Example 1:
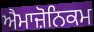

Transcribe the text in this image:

ਐਮਾਜ਼ੋਨਿਕਮ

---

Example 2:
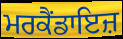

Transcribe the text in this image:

ਮਰਕੈਂਡਾਇਜ਼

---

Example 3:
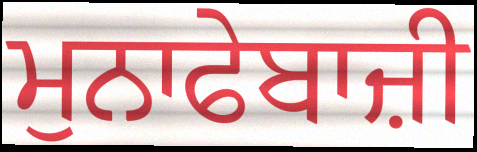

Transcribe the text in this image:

ਮੁਨਾਫੇਬਾਜ਼ੀ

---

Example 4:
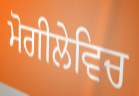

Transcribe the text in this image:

ਮੋਗੀਲੇਵਿਚ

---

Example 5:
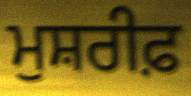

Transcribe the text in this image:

ਮੁਸ਼ਰੀਫ਼